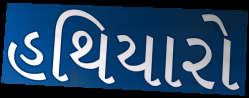
હથિયારો